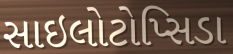
સાઇલોટોપ્સિડા